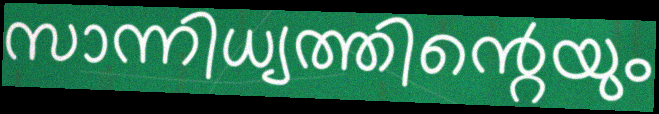
സാന്നിധ്യത്തിന്റെയും